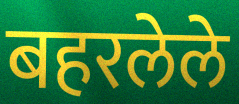
बहरलेले